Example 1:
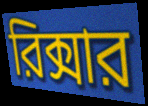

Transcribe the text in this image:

রিক্সার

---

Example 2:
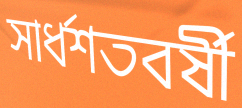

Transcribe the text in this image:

সার্ধশতবর্ষী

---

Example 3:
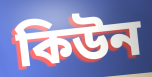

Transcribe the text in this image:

কিউন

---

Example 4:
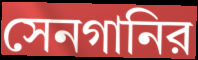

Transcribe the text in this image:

সেনগানির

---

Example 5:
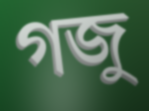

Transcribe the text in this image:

গজু